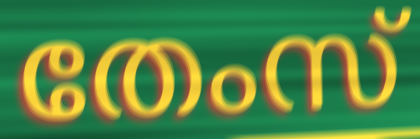
തേംസ്